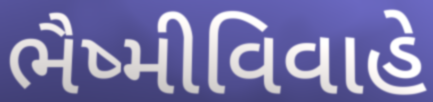
ભૈષ્મીવિવાહે